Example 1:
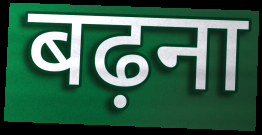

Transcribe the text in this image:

बढ़ना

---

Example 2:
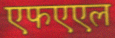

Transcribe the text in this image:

एफएएल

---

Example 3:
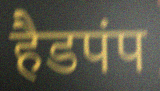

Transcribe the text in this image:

हैडपंप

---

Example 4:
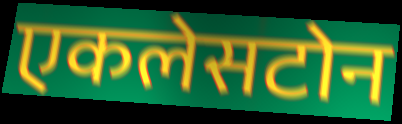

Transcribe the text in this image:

एकलेसटोन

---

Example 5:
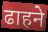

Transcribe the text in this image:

ढाहने